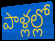
పాళ్లల్లో